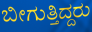
ಬೀಗುತ್ತಿದ್ದರು